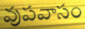
వుపవాసం